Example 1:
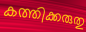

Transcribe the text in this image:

കത്തിക്കരുതു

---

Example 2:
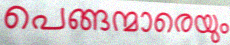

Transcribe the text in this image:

പെങ്ങന്മാരെയും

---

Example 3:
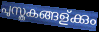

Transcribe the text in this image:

പുസ്തകങ്ങള്ക്കും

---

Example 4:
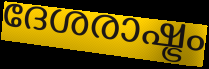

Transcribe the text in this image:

ദേശരാഷ്ട്രം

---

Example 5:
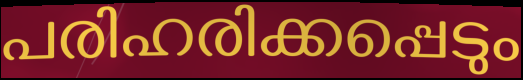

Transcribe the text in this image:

പരിഹരിക്കപ്പെടും